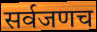
सर्वजणच